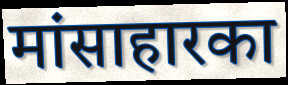
मांसाहारका